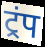
ट्रंप